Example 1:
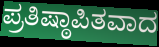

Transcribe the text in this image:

ಪ್ರತಿಷ್ಠಾಪಿತವಾದ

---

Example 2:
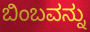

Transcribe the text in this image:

ಬಿಂಬವನ್ನು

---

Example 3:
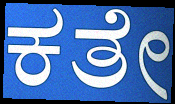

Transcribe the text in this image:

ಕತೇ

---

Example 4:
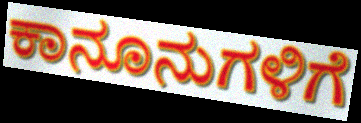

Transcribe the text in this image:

ಕಾನೂನುಗಳಿಗೆ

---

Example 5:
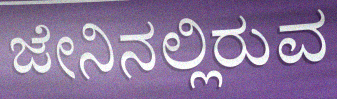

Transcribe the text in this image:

ಜೇನಿನಲ್ಲಿರುವ